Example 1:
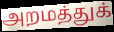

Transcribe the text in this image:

அறமத்துக்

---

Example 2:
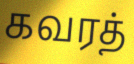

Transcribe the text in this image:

கவரத்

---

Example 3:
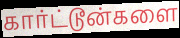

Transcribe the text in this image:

கார்ட்டூன்களை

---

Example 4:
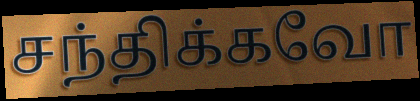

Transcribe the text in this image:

சந்திக்கவோ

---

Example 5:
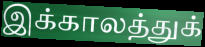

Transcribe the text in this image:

இக்காலத்துக்